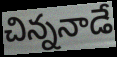
చిన్ననాడే